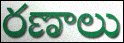
రణాలు